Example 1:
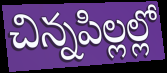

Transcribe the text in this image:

చిన్నపిల్లల్లో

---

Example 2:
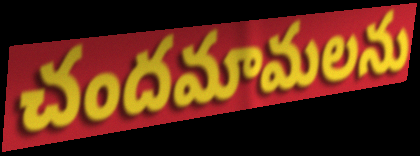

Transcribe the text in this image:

చందమామలను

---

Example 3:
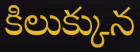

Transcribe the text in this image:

కిలుక్కున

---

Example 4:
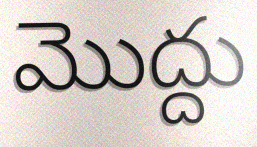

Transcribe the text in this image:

మొద్దు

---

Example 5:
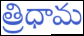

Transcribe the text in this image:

త్రిధామ